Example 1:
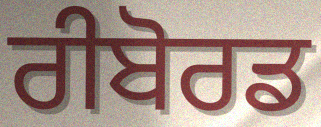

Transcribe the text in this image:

ਰੀਬੋਰਡ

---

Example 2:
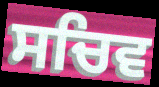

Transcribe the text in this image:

ਸਚਿਵ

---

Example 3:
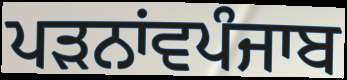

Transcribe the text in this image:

ਪੜਨਾਂਵਪੰਜਾਬ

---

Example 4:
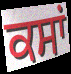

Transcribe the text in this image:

ਕਸਾਂ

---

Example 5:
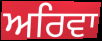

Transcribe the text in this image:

ਅਰਿਵਾ